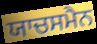
ਯਾਚਸਮੈਨ